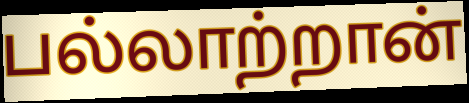
பல்லாற்றான்